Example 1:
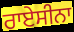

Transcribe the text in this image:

ਰਾਏਸੀਨਾ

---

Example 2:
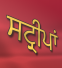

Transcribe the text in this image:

ਸਟ੍ਰੀਪਾਂ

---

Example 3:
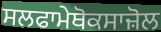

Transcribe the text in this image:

ਸਲਫਾਮੇਥੋਕਸਾਜ਼ੋਲ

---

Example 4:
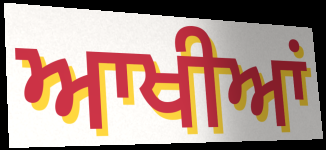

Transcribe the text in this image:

ਆਖੀਆਂ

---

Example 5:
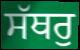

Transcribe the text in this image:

ਸੱਥਰੁ